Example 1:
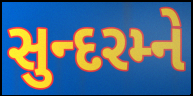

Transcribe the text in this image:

સુન્દરમ્ને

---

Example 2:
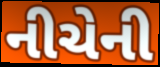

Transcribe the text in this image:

નીચેની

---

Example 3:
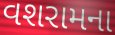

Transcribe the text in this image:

વશરામના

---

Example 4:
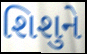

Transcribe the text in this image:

શિશુને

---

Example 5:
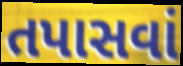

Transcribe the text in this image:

તપાસવાં